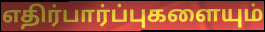
எதிர்பார்ப்புகளையும்